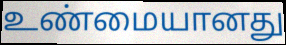
உண்மையானது